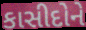
કાસીદોને